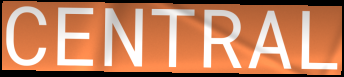
CENTRAL